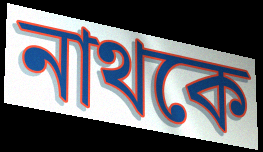
নাথকে